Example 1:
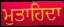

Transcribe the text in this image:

ਮੁਤਾਹਿਦਾ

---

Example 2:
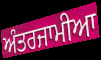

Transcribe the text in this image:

ਅੰਤਰਜਾਮੀਆ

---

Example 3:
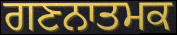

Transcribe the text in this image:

ਗਣਨਾਤਮਕ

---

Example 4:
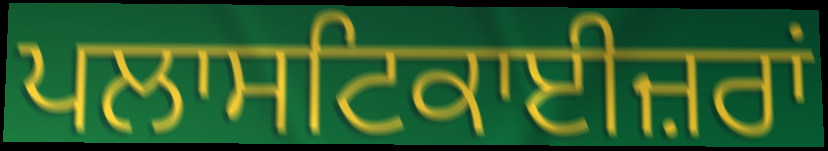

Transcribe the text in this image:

ਪਲਾਸਟਿਕਾਈਜ਼ਰਾਂ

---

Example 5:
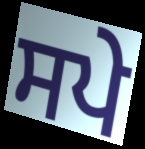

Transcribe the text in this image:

ਸਪੇ